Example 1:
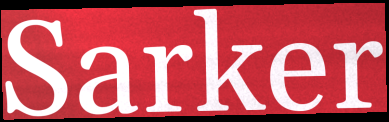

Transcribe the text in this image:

Sarker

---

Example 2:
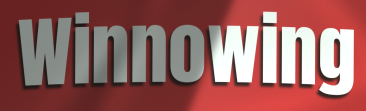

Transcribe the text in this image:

Winnowing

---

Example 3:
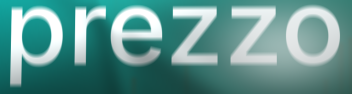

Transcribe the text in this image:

prezzo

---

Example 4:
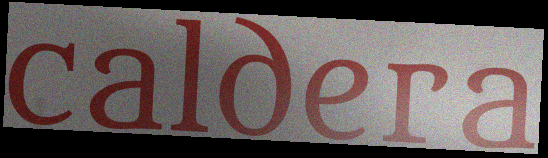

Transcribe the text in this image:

caldera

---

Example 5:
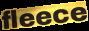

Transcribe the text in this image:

fleece